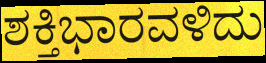
ಶಕ್ತಿಭಾರವಳಿದು